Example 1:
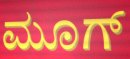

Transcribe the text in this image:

ಮೂಗ್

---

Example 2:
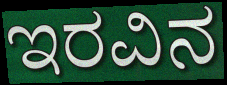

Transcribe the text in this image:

ಇರವಿನ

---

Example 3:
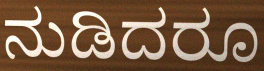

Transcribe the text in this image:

ನುಡಿದರೂ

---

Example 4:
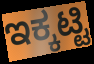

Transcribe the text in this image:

ಇಕ್ಕಟ್ಟಿ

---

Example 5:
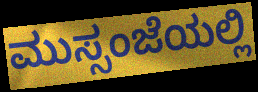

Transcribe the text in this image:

ಮುಸ್ಸಂಜೆಯಲ್ಲಿ